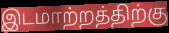
இடமாற்றத்திற்கு